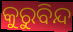
କୁରୁବିନ୍ଦ